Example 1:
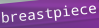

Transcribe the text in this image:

breastpiece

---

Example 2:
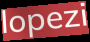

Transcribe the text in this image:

lopezi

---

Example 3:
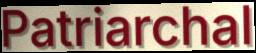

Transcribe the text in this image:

Patriarchal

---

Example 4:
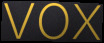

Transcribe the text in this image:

vox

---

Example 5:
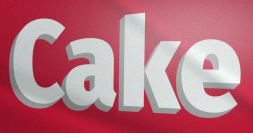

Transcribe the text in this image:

Cake